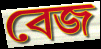
বেজ